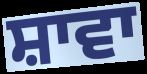
ਸ਼ਾਵਾ